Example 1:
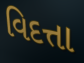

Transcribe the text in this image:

વિદત્તા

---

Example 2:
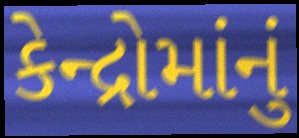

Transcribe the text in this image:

કેન્દ્રોમાંનું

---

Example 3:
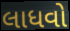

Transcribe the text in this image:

લાધવો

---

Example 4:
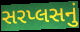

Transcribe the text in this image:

સરપ્લસનું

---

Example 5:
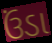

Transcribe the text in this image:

ઉંડા